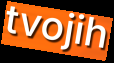
tvojih